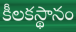
కీలకస్థానం